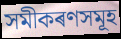
সমীকৰণসমূহ